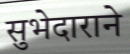
सुभेदाराने